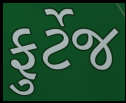
ફુર્ટેજ